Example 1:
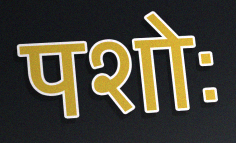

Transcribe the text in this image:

पशोः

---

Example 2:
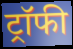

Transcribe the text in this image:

ट्रॉफी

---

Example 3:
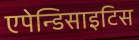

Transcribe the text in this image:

एपेन्डिसाइटिस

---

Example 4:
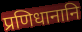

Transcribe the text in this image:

प्रणिधानानि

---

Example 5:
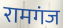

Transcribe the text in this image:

रामगंज